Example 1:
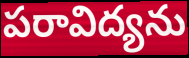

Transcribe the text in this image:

పరావిద్యను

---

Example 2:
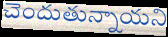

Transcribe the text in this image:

చెందుతున్నాయని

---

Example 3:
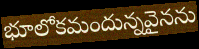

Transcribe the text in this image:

భూలోకమందున్నవైనను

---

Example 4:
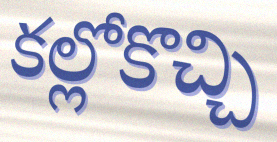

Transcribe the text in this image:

కల్లోకొచ్చి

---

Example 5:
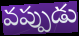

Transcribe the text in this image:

వప్పుడు